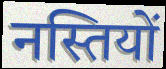
नस्तियों